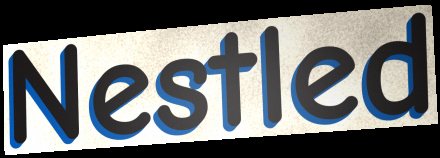
Nestled